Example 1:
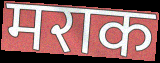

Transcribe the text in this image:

मराक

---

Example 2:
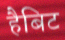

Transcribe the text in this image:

हैबिट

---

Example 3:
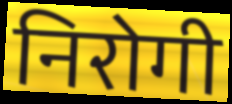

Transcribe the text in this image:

निरोगी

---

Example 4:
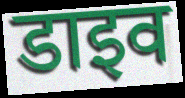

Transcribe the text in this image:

डाइव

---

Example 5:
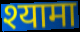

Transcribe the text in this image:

श्‍यामा